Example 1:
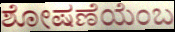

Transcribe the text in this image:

ಶೋಷಣೆಯೆಂಬ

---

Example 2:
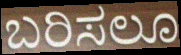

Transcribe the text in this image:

ಬರಿಸಲೂ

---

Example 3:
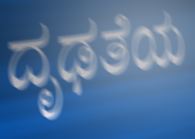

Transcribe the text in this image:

ದೃಢತೆಯ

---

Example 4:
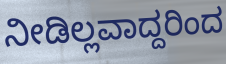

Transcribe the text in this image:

ನೀಡಿಲ್ಲವಾದ್ದರಿಂದ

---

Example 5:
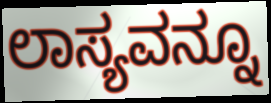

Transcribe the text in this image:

ಲಾಸ್ಯವನ್ನೂ